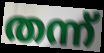
തന്ന്